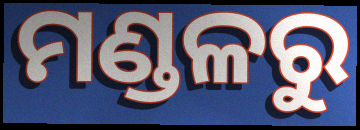
ମଣ୍ଡଳରୁ